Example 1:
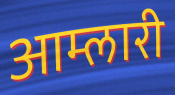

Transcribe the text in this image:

आम्लारी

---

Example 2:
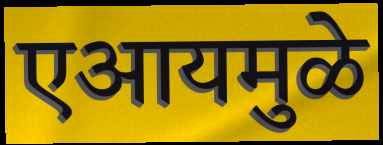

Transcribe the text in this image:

एआयमुळे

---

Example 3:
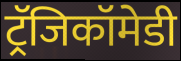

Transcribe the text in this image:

ट्रॅजिकॉमेडी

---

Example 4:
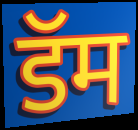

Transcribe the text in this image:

डॅम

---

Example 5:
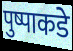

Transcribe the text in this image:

पुष्पाकडे